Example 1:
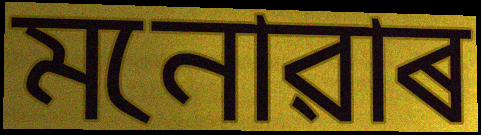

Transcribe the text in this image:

মনোৱাৰ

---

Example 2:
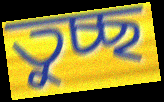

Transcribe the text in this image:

তুচ্ছ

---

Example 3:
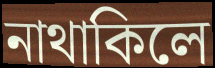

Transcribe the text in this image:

নাথাকিলে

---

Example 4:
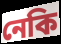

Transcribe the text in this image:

নেকি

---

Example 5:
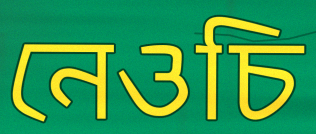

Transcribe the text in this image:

নেওচি